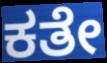
ಕತೇ